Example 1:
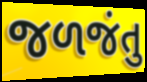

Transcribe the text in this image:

જળજંતુ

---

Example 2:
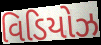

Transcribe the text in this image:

વિડિયોઝ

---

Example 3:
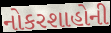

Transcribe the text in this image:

નોકરશાહોની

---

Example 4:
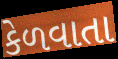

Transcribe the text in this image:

કેળવાતા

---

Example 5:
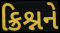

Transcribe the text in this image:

ક્રિશ્નને